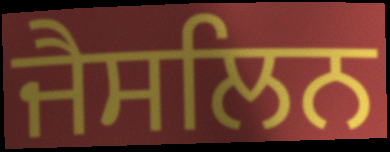
ਜੈਸਲਿਨ